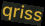
qriss